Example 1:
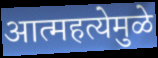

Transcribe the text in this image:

आत्महत्येमुळे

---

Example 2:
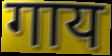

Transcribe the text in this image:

गाय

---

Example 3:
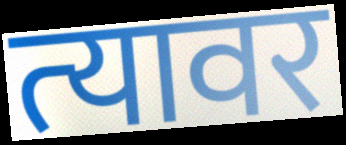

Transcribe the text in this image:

त्‍यावर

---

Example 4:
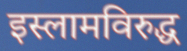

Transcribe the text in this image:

इस्लामविरुद्ध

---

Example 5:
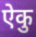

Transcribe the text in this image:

ऐकु